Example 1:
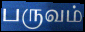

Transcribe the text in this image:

பருவம்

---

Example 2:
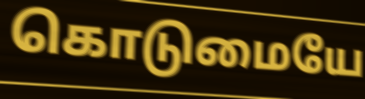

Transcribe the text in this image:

கொடுமையே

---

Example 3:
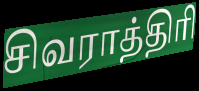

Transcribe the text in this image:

சிவராத்திரி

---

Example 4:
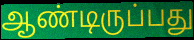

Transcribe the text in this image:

ஆண்டிருப்பது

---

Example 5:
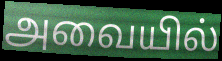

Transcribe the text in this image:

அவையில்